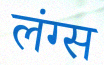
लंग्स